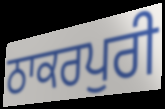
ਠਾਕਰਪੁਰੀ